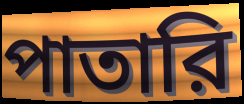
পাতারি